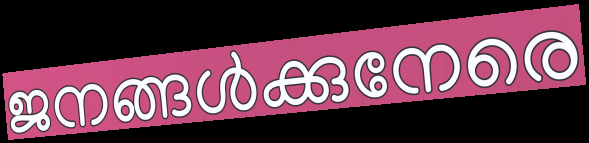
ജനങ്ങൾക്കുനേരെ